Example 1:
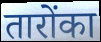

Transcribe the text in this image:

तारोंका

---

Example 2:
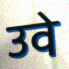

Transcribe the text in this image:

उवे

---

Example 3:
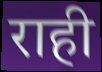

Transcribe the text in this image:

राही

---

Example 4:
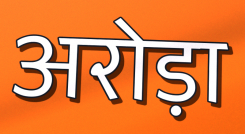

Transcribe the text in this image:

अरोड़ा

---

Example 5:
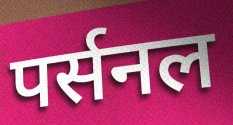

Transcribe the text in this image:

पर्सनल